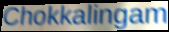
Chokkalingam